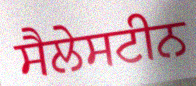
ਸੈਲੇਸਟੀਨ